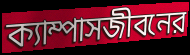
ক্যাম্পাসজীবনের